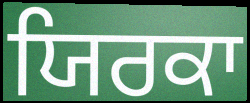
ਯਿਰਕਾ